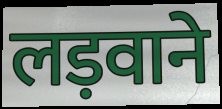
लड़वाने